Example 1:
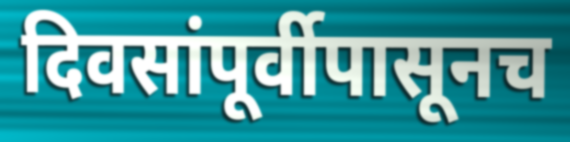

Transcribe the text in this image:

दिवसांपूर्वीपासूनच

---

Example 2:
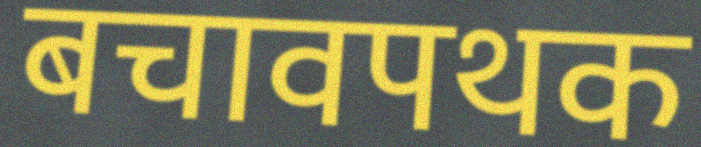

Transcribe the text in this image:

बचावपथक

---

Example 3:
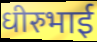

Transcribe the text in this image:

धीरुभाई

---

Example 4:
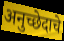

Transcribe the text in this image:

अनुच्छेदाचे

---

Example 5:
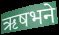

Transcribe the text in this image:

ऋषभने